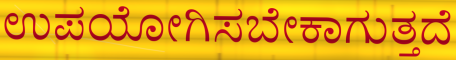
ಉಪಯೋಗಿಸಬೇಕಾಗುತ್ತದೆ